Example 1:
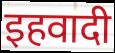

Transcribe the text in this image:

इहवादी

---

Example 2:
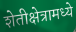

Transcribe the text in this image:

शेतीक्षेत्रामध्ये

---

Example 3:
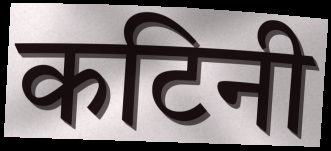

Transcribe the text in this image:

कटिनी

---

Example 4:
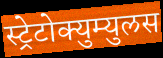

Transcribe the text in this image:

स्ट्रेटोक्युम्युलस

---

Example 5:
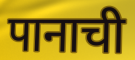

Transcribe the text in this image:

पानाची